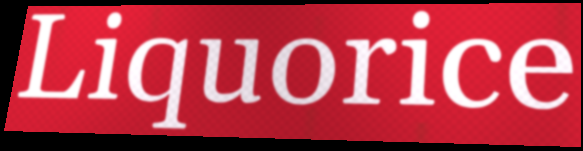
Liquorice